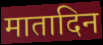
मातादिन